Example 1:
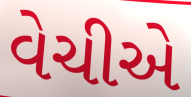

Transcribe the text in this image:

વેચીએ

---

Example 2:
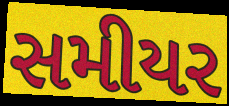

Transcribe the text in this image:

સમીયર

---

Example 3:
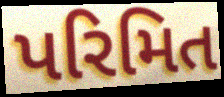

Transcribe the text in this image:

પરિમિત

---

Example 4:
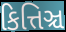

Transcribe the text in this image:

કિત્તિઞ્ચ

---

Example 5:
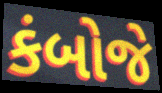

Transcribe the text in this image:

કંબોજે